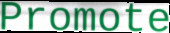
Promote